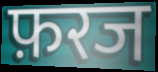
फ़रज